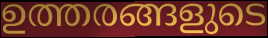
ഉത്തരങ്ങളുടെ